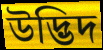
উদ্ভিদ